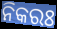
ନିକରଃ